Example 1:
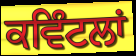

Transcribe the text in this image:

ਕਵਿੰਟਲਾਂ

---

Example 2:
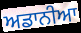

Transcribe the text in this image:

ਅਡਾਨੀਆ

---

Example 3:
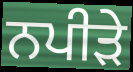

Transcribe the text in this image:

ਨਪੀੜੇ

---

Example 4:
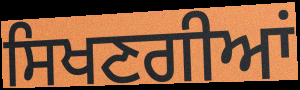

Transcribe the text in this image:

ਸਿਖਣਗੀਆਂ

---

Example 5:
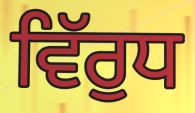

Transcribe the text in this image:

ਵਿੱਰੁਧ